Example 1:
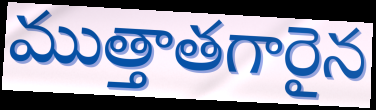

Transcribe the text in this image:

ముత్తాతగారైన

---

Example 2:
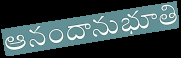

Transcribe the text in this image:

ఆనందానుభూతి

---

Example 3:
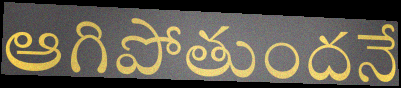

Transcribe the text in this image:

ఆగిపోతుందనే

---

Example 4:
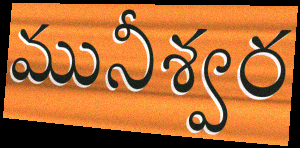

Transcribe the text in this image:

మునీశ్వర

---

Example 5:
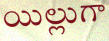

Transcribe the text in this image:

యిల్లుగా